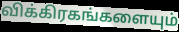
விக்கிரகங்களையும்